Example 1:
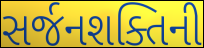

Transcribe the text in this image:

સર્જનશક્તિની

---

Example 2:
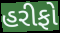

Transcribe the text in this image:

હરીફો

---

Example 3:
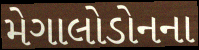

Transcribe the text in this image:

મેગાલોડોનના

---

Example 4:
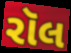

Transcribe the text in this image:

રૉલ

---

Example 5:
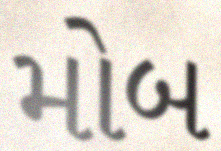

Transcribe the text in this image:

મોબ